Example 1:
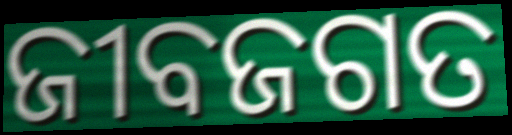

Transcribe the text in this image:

ଜୀବଜଗତ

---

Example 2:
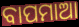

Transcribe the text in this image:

ବାପମାଆ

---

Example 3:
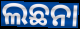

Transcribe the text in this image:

ଲଛନା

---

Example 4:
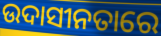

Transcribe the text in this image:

ଉଦାସୀନତାରେ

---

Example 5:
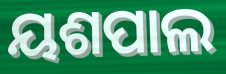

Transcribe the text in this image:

ୟଶପାଲ